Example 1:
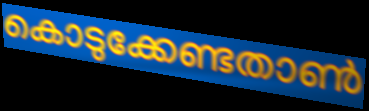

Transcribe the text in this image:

കൊടുക്കേണ്ടതാൺ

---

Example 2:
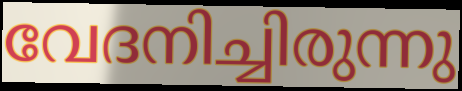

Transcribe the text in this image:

വേദനിച്ചിരുന്നു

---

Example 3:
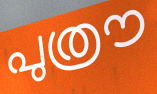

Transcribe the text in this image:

പുത്രൗ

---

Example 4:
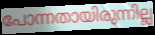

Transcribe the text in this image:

പോന്നതായിരുന്നില്ല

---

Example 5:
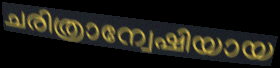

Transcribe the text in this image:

ചരിത്രാന്വേഷിയായ